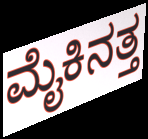
ಮೈಕಿನತ್ತ